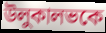
উলুকালভকে